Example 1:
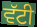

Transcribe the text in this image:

ਵੱਟੀ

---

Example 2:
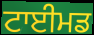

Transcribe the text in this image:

ਟਾਈਮਡ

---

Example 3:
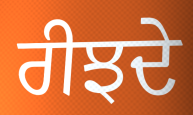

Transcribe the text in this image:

ਰੀਝਦੇ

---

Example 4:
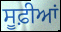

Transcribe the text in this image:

ਸੂਫ਼ੀਆਂ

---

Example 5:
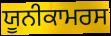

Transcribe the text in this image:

ਯੂਨੀਕਾਮਰਸ